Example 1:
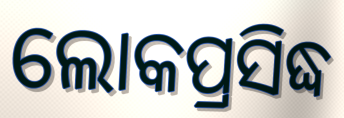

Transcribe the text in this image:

ଲୋକପ୍ରସିଦ୍ଧ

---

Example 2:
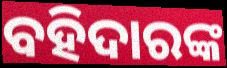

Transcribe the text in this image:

ବହିଦାରଙ୍କ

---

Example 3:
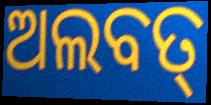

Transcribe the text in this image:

ଅଲବତ୍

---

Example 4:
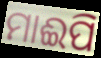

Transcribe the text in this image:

ମାଈପି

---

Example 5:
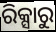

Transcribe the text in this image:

ରିକ୍ସାରୁ